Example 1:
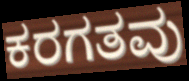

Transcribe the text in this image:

ಕರಗತವು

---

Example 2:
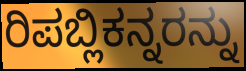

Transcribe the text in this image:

ರಿಪಬ್ಲಿಕನ್ನರನ್ನು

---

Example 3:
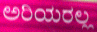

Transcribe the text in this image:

ಅರಿಯರಲ್ಲ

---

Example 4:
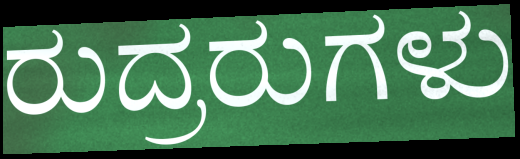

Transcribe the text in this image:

ರುದ್ರರುಗಳು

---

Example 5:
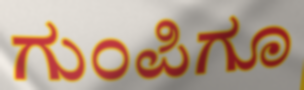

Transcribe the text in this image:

ಗುಂಪಿಗೂ